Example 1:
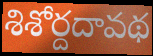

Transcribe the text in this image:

శిశోర్దదావథ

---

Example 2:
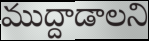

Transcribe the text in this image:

ముద్దాడాలని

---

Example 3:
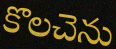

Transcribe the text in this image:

కొలచెను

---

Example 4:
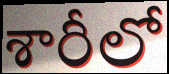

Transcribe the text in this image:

శారీలో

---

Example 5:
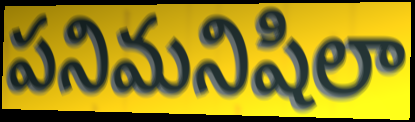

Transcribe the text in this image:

పనిమనిషిలా